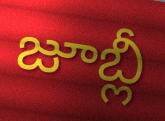
జూబ్లీ